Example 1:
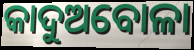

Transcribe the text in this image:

କାଦୁଅବୋଳା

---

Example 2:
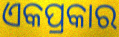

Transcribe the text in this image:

ଏକପ୍ରକାର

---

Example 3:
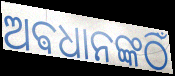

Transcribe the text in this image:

ଅଵଧାନଙ୍କଠିଁ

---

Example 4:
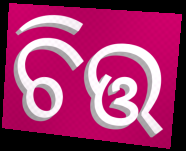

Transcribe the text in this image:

ଚିତ୍ତ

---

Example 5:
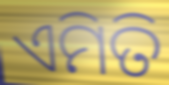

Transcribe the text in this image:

ଏମିତି